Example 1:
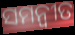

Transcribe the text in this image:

ସମନ୍ଵୀତ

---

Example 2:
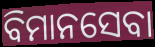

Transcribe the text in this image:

ବିମାନସେବା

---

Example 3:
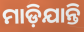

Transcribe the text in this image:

ମାଡ଼ିଯାନ୍ତି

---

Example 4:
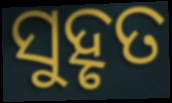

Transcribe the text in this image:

ସୁହୃତ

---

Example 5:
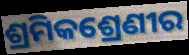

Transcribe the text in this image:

ଶ୍ରମିକଶ୍ରେଣୀର